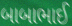
બાબાભાઈ